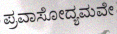
ಪ್ರವಾಸೋದ್ಯಮವೇ